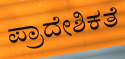
ಪ್ರಾದೇಶಿಕತೆ